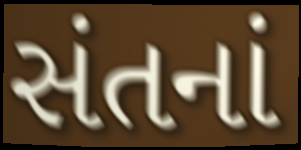
સંતનાં